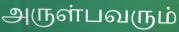
அருள்பவரும்